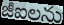
జీఐలను